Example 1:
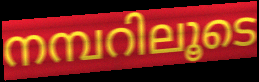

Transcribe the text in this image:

നമ്പറിലൂടെ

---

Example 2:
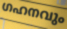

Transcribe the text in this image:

ഗഹനവും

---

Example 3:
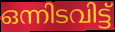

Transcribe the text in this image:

ഒന്നിടവിട്ട്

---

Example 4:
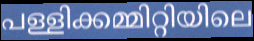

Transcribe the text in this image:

പള്ളിക്കമ്മിറ്റിയിലെ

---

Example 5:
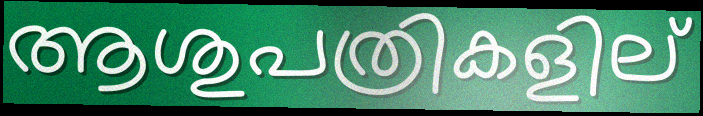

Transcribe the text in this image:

ആശുപത്രികളില്